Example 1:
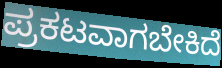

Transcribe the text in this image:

ಪ್ರಕಟವಾಗಬೇಕಿದೆ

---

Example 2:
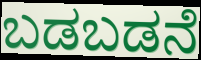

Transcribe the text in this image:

ಬಡಬಡನೆ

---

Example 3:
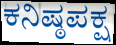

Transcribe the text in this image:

ಕನಿಷ್ಠಪಕ್ಷ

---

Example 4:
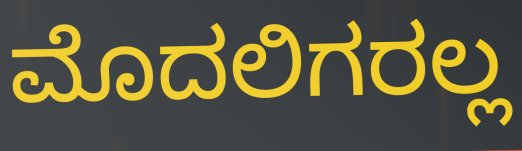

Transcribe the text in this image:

ಮೊದಲಿಗರಲ್ಲ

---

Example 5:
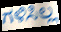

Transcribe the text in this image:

ಗಳಿಸಿಲ್ಲ